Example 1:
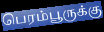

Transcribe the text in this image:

பெரம்பூருக்கு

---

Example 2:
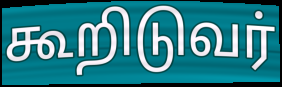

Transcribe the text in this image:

கூறிடுவர்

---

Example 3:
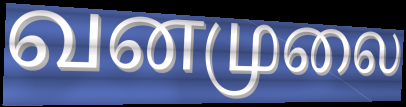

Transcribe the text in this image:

வனமுலை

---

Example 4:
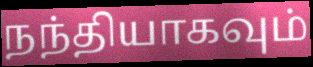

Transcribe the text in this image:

நந்தியாகவும்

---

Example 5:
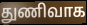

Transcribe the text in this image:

துணிவாக